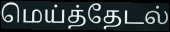
மெய்த்தேடல்